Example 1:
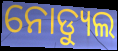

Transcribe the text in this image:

ନୋଡ୍ୟୁଲ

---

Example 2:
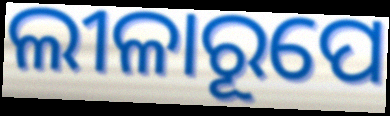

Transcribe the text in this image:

ଲୀଳାରୂପେ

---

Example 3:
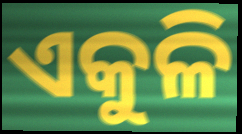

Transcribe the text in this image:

ଏକୁଳି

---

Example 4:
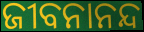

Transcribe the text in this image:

ଜୀବନାନନ୍ଦ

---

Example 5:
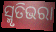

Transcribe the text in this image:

ସ୍ମୃତିଭରା